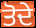
ਤੋਦੇ